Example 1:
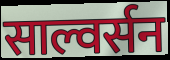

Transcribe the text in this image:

साल्वर्सन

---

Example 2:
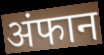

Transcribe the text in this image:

अंफान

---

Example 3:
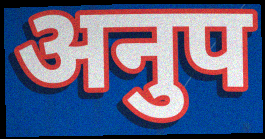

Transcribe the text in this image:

अनुप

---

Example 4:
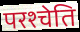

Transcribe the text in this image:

परश्चेति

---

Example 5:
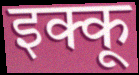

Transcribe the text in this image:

इक्कू